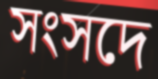
সংসদে